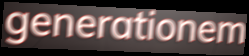
generationem